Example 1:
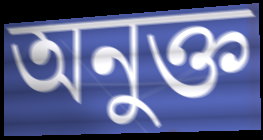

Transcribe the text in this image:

অনুক্ত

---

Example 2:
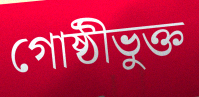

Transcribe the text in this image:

গোষ্ঠীভুক্ত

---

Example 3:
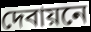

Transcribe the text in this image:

দেবায়নে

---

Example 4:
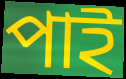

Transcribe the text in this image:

পাই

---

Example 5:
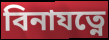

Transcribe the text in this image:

বিনাযত্নে